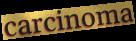
carcinoma